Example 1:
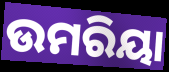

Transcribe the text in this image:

ଉମରିୟା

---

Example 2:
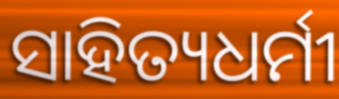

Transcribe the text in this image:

ସାହିତ୍ୟଧର୍ମୀ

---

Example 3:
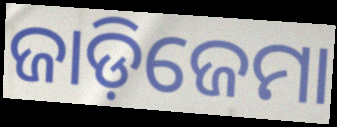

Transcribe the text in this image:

ଜାଡ଼ିଜେମା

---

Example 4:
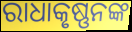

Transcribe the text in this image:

ରାଧାକୃଷ୍ଣନଙ୍କ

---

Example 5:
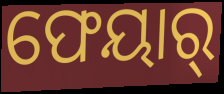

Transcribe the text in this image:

ଫେୟାର୍